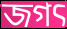
জগৎ